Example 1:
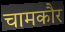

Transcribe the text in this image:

चामकौर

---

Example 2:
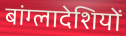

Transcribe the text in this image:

बांग्लादेशियों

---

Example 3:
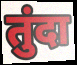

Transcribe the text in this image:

तुंदा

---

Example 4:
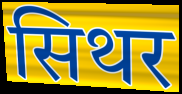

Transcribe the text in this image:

सिथर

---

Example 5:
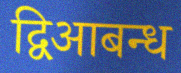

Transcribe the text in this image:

द्विआबन्ध